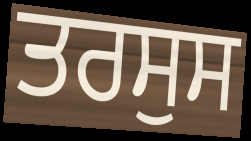
ਤਰਸੁਸ